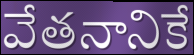
వేతనానికే